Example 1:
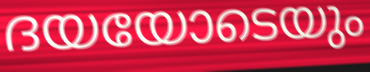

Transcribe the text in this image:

ദയയോടെയും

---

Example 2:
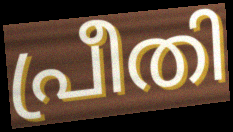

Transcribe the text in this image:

പ്രീതി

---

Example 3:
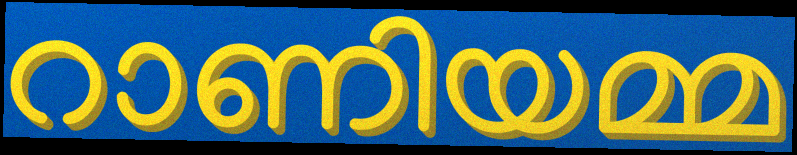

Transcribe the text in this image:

റാണിയമ്മ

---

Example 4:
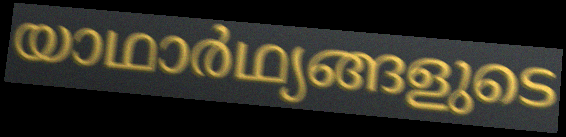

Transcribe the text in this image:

യാഥാർഥ്യങ്ങളുടെ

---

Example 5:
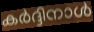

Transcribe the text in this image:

കർദ്ദിനാൾ